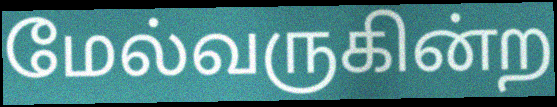
மேல்வருகின்ற